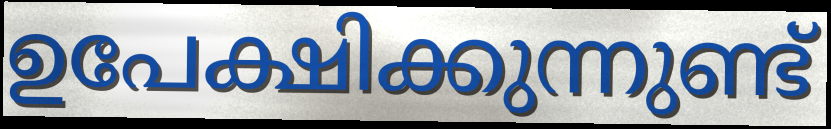
ഉപേക്ഷിക്കുന്നുണ്ട്